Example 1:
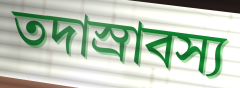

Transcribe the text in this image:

তদাস্রাবস্য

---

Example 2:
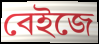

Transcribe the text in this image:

বেইজে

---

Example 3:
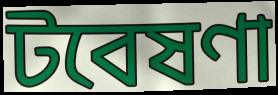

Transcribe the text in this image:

টবেষণা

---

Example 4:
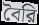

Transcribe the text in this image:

বৈরি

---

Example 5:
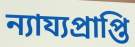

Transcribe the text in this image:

ন্যায্যপ্রাপ্তি